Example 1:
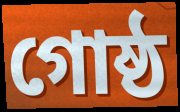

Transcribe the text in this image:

গোষ্ঠ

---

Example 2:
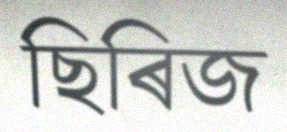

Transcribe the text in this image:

ছিৰিজ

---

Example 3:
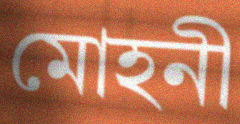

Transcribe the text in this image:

মোহনী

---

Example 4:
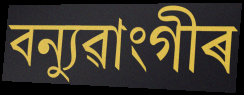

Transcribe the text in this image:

বন্যুৱাংগীৰ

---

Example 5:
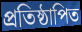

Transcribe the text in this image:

প্ৰতিষ্ঠাপিত